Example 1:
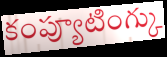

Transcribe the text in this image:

కంప్యూటింగ్కు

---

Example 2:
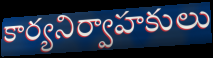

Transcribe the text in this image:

కార్యనిర్వాహకులు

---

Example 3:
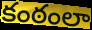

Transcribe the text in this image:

కంఠంలా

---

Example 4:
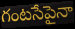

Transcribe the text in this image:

గంటసేపైనా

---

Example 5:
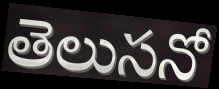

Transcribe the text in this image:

తెలుసనో